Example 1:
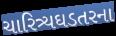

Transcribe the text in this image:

ચારિત્ર્યઘડતરના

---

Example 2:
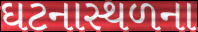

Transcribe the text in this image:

ઘટનાસ્થળના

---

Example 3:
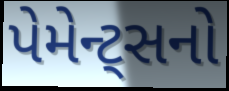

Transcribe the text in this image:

પેમેન્ટ્સનો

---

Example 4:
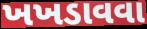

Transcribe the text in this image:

ખખડાવવા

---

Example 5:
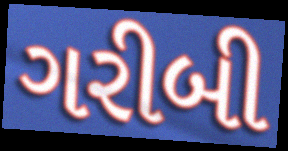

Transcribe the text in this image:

ગરીબી